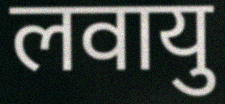
लवायु